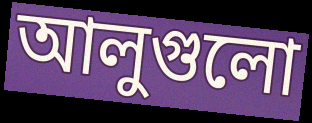
আলুগুলো